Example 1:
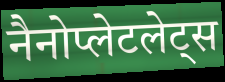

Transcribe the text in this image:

नैनोप्लेटलेट्स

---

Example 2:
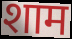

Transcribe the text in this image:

शाम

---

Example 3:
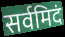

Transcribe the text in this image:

सर्वमिदं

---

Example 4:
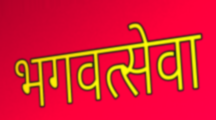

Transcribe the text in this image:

भगवत्सेवा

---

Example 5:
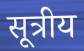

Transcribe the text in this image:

सूत्रीय